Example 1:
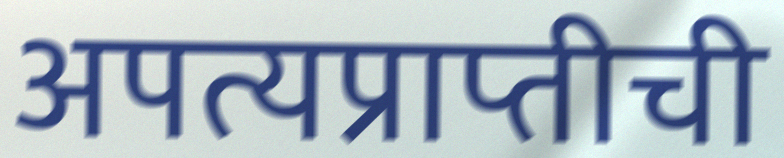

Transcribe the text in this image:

अपत्यप्राप्तीची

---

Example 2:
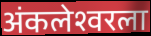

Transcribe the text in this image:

अंकलेश्वरला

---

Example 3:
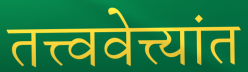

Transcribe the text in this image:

तत्त्ववेत्त्यांत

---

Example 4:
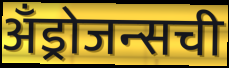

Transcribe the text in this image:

अँड्रोजन्सची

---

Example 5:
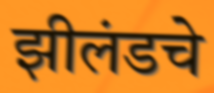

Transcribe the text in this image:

झीलंडचे